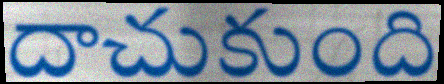
దాచుకుంది